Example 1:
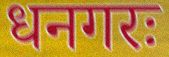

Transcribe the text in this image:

धनगरः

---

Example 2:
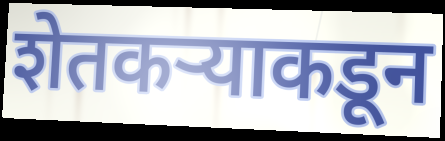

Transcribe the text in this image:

शेतकऱ्याकडून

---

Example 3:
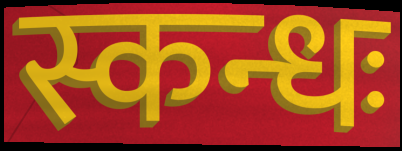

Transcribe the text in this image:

स्कन्धः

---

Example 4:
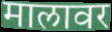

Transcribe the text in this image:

मालावर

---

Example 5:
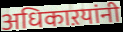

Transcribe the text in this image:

अधिकाऱयांनी